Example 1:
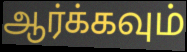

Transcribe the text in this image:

ஆர்க்கவும்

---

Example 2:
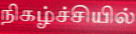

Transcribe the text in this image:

நிகழ்ச்சியில்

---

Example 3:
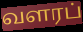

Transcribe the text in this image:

வளரப்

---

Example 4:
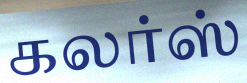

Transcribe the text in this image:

கலர்ஸ்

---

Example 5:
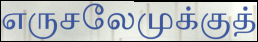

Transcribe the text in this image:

எருசலேமுக்குத்